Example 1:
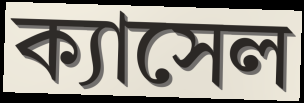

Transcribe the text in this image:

ক্যাসেল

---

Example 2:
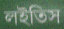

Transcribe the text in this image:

লইতিস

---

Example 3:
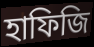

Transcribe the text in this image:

হাফিজি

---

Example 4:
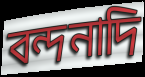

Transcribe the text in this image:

বন্দনাদি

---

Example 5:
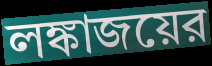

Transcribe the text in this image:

লঙ্কাজয়ের